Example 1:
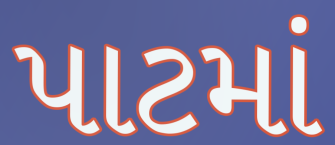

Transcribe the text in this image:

પાટમાં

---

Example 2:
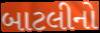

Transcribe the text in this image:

બાટલીનો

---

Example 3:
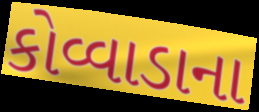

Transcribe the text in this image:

કોવ્વાડાના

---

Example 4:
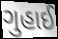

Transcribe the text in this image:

ગુહાઈ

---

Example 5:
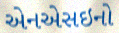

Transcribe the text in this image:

એનએસઇનો